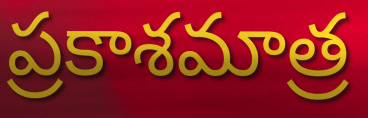
ప్రకాశమాత్ర